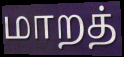
மாறத்